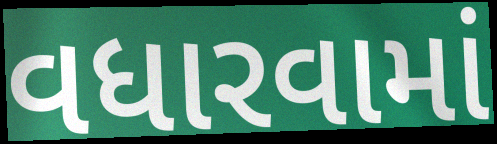
વધારવામાં